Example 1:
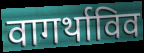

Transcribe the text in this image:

वागर्थाविव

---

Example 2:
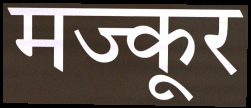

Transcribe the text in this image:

मज्कूर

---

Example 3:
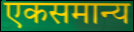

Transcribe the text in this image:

एकसमान्य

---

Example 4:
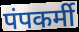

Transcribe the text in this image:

पंपकर्मी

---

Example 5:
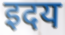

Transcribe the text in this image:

इदय